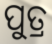
ପୁତ୍ର